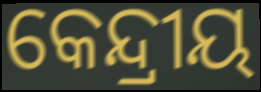
କେନ୍ଦ୍ରୀୟ